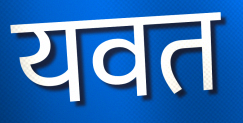
यवत